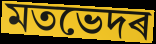
মতভেদৰ